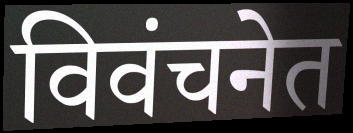
विवंचनेत